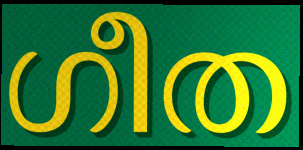
ഗീത